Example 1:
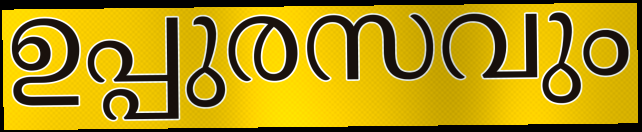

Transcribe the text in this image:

ഉപ്പുരസവും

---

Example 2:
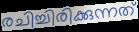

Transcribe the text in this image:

രചിച്ചിരിക്കുന്നത്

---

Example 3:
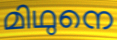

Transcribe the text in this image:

മിഥുനെ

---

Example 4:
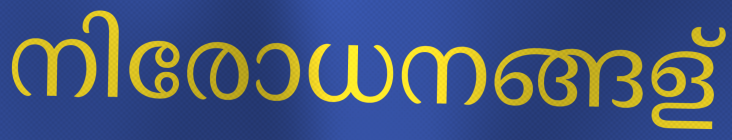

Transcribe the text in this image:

നിരോധനങ്ങള്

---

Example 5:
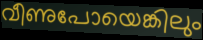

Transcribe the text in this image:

വീണുപോയെങ്കിലും